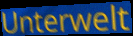
Unterwelt